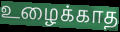
உழைக்காத